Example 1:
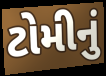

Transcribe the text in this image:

ટોમીનું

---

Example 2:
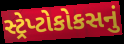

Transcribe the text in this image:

સ્ટ્રેપ્ટોકોકસનું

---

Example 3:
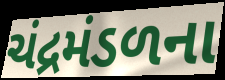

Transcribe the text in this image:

ચંદ્રમંડળના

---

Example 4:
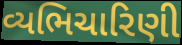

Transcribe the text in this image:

વ્યભિચારિણી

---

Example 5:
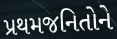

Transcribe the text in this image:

પ્રથમજનિતોને